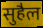
सुहैल